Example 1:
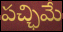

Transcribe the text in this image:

పచ్ఛిమే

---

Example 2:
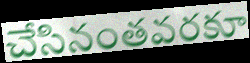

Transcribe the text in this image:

చేసినంతవరకూ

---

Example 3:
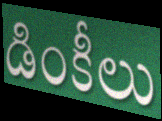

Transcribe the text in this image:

డింకీలు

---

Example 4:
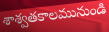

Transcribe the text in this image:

శాశ్వతకాలమునుండి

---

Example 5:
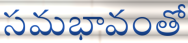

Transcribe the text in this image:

సమభావంతో